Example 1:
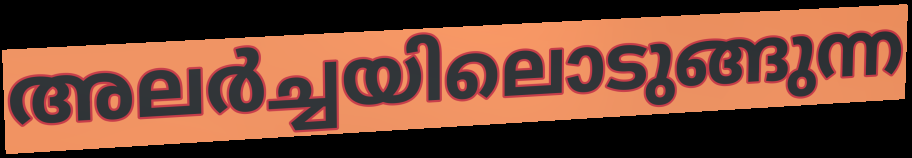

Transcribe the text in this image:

അലർച്ചയിലൊടുങ്ങുന്ന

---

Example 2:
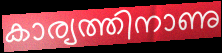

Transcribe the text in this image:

കാര്യത്തിനാണു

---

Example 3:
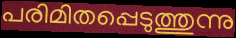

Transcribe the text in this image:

പരിമിതപ്പെടുത്തുന്നു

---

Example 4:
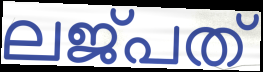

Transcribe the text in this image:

ലജ്പത്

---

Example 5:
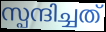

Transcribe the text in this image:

സ്പന്ദിച്ചത്